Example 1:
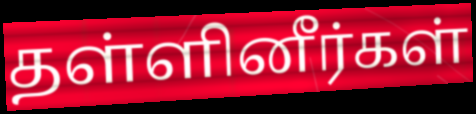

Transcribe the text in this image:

தள்ளினீர்கள்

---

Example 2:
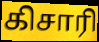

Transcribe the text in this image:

கிசாரி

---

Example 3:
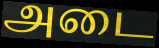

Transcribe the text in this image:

அடை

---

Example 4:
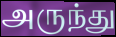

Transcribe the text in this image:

அருந்து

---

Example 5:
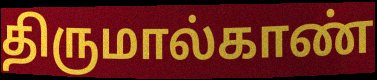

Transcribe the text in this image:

திருமால்காண்